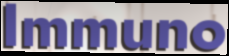
Immuno